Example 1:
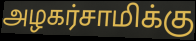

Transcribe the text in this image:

அழகர்சாமிக்கு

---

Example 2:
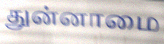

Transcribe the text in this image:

துன்னாமை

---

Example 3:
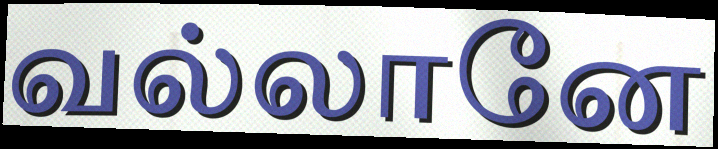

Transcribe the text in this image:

வல்லானே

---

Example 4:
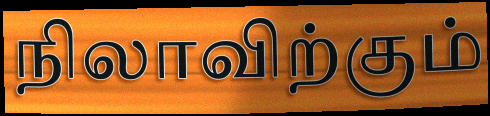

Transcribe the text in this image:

நிலாவிற்கும்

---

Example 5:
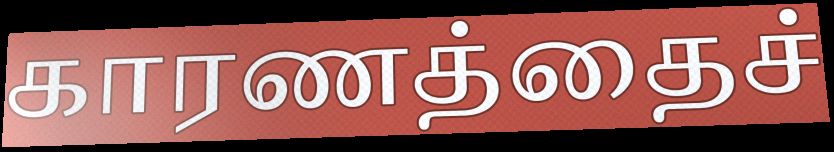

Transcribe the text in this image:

காரணத்தைச்